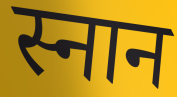
स्नान